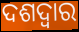
ଦଶଦ୍ୱାର